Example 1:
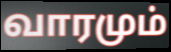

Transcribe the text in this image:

வாரமும்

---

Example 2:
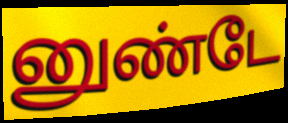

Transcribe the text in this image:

னுண்டே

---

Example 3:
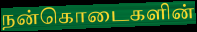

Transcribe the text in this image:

நன்கொடைகளின்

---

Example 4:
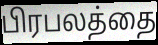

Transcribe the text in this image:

பிரபலத்தை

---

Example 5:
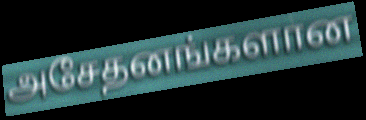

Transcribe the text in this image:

அசேதனங்களான